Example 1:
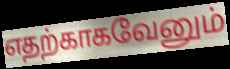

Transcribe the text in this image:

எதற்காகவேனும்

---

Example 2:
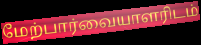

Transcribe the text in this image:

மேற்பார்வையாளரிடம்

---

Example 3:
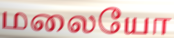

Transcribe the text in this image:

மலையோ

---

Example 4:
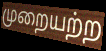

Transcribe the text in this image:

முறையற்ற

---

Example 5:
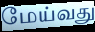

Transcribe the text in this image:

மேய்வது